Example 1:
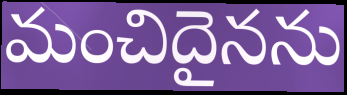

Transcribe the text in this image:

మంచిదైనను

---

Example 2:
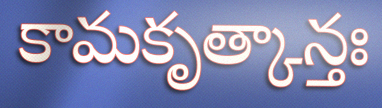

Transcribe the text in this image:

కామకృత్కాన్తః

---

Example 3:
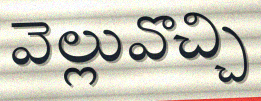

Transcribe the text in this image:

వెల్లువొచ్చి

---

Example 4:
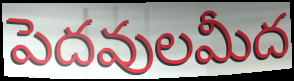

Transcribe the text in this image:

పెదవులమీద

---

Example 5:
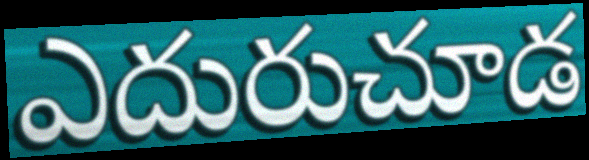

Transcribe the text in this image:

ఎదురుచూడ